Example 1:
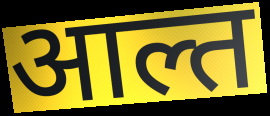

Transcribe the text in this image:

आल्त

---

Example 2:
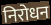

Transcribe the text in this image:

निरोधन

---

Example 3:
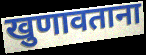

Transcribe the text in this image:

खुणावताना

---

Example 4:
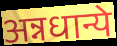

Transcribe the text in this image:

अन्नधान्ये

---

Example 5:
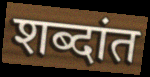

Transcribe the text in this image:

शब्दांत